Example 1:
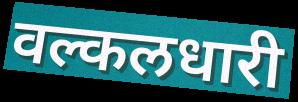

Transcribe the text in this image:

वल्कलधारी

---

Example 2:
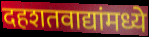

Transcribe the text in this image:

दहशतवाद्यांमध्ये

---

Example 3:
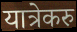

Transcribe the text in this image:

यात्रेकरु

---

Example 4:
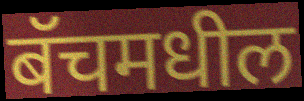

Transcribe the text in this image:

बॅचमधील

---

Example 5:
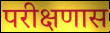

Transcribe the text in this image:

परीक्षणास